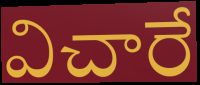
విచారే